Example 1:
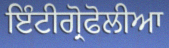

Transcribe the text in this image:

ਇੰਟੀਗ੍ਰੋਫੋਲੀਆ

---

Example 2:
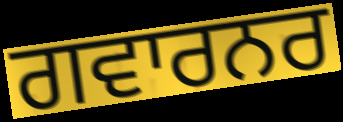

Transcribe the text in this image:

ਗਵਾਰਨਰ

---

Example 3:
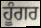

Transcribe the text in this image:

ਹੂੰਗਰ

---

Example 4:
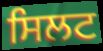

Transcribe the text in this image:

ਸਿਲਟ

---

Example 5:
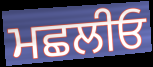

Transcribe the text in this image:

ਮਛਲੀਓ